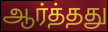
ஆர்த்தது